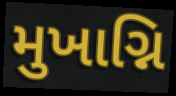
મુખાગ્નિ